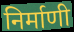
निर्माणी